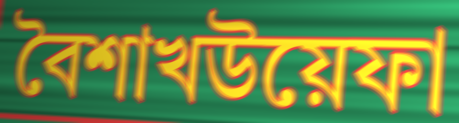
বৈশাখউয়েফা